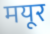
मयूर